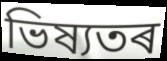
ভিষ্যতৰ